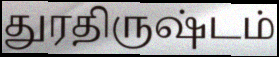
துரதிருஷ்டம்